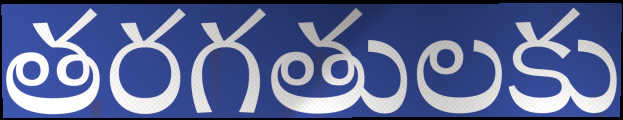
తరగతులకు